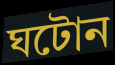
ঘটোন